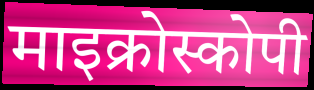
माइक्रोस्कोपी